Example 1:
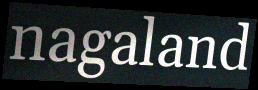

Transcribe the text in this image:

nagaland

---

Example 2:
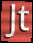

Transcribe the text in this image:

Jt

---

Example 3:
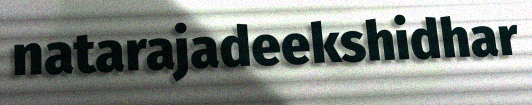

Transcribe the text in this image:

natarajadeekshidhar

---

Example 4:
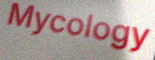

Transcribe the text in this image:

Mycology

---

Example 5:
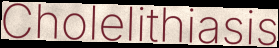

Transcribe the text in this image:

Cholelithiasis